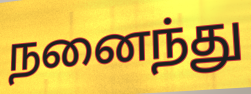
நனைந்து